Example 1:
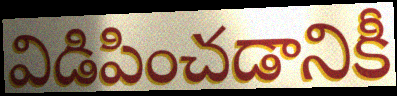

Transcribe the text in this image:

విడిపించడానికీ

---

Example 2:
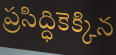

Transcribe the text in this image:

ప్రసిద్ధికెక్కిన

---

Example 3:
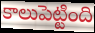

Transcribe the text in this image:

కాలుపెట్టింది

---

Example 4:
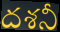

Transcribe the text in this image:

దశనీ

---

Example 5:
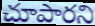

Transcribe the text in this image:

చూపారని